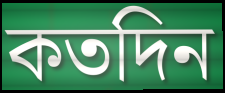
কতদিন